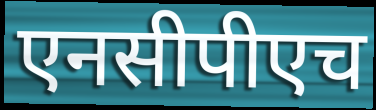
एनसीपीएच